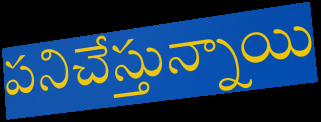
పనిచేస్తున్నాయి